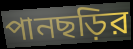
পানছড়ির